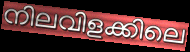
നിലവിളക്കിലെ